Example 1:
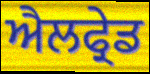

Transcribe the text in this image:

ਐਲਫ੍ਰੇਡ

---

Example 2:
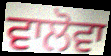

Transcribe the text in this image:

ਵਾਲੋਵਾ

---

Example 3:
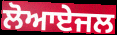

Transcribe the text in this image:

ਲੋਆਏਜਲ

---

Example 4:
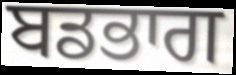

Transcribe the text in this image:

ਬਡਭਾਗ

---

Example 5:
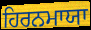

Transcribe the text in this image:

ਹਿਰਨਮਾਯਾ